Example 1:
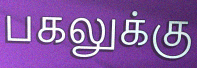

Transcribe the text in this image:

பகலுக்கு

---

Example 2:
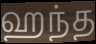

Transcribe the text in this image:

ஹந்த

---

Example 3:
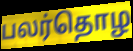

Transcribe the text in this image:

பலர்தொழ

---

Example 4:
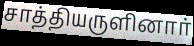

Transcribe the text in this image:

சாத்தியருளினார்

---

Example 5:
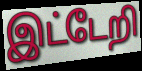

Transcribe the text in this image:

இட்டேறி